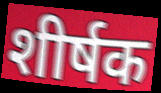
शीर्षक